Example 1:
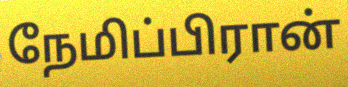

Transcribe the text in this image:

நேமிப்பிரான்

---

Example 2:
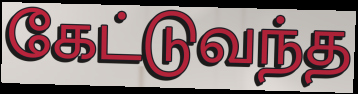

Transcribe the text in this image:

கேட்டுவந்த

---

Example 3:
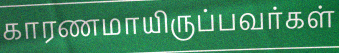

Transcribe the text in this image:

காரணமாயிருப்பவர்கள்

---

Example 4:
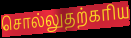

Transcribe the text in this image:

சொல்லுதற்கரிய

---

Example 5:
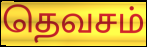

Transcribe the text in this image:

தெவசம்